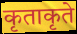
कृताकृते